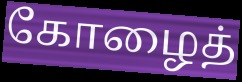
கோழைத்